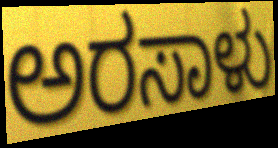
ಅರಸಾಳು